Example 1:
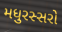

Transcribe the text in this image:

મધુરસ્સરો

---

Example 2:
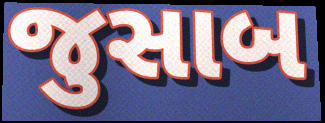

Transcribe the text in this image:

જુસાબ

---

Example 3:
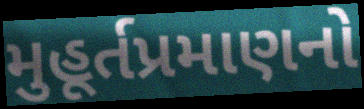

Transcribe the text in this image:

મુહૂર્તપ્રમાણનો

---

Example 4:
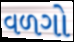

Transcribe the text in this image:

વળગો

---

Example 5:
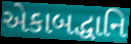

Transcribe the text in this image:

એકાબદ્ધાનિ